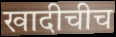
खादीचीच